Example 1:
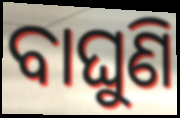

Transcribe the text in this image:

ବାଘୁଣି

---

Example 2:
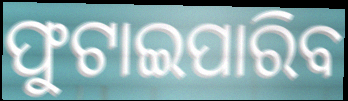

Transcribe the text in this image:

ଫୁଟାଇପାରିବ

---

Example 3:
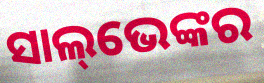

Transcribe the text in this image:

ସାଲ୍‌ଭେଙ୍କର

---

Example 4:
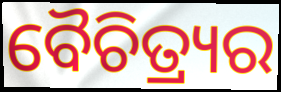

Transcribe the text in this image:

ବୈଚିତ୍ର୍ୟର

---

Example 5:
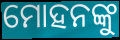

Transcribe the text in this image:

ମୋହନଙ୍କୁ